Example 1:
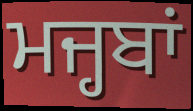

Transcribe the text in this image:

ਮਜ੍ਹਬਾਂ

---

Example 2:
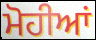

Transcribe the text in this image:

ਮੋਹੀਆਂ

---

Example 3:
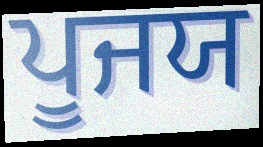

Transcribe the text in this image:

ਪੂਜਯ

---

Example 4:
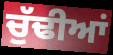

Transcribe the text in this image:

ਚੁੱਢੀਆਂ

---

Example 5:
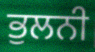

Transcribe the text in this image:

ਭੁਲਨੀ